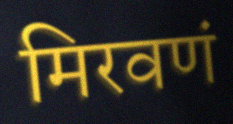
मिरवणं